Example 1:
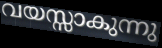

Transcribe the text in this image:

വയസ്സാകുന്നു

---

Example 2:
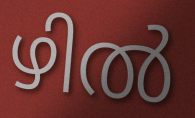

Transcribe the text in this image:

ഴിൽ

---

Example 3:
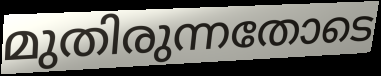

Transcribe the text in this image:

മുതിരുന്നതോടെ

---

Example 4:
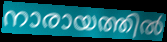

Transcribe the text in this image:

നാരായത്തിൽ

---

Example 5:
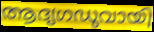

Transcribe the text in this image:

ആദ്യഗഡുവായി